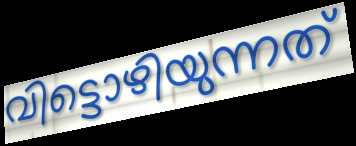
വിട്ടൊഴിയുന്നത്